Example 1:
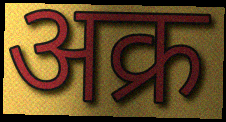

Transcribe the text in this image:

अक्र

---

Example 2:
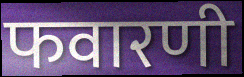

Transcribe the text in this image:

फवारणी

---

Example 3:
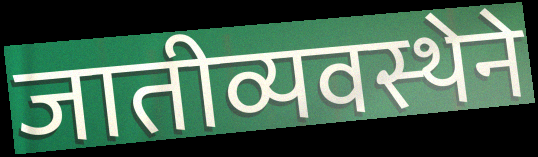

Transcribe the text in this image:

जातीव्यवस्थेने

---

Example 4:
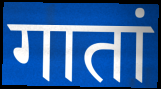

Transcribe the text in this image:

गातां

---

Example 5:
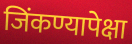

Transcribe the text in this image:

जिंकण्यापेक्षा